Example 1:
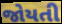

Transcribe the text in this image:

જોયતી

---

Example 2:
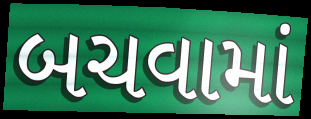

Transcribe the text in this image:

બચવામાં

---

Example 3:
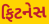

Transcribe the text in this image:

ફિટનેસ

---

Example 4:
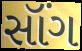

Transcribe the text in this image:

સૉંગ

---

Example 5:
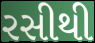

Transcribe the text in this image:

રસીથી